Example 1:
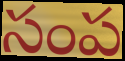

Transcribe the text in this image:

సంప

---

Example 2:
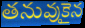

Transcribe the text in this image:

తనువుకైన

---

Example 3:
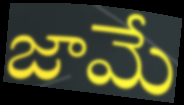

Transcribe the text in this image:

జామే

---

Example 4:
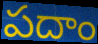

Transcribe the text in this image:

పదాం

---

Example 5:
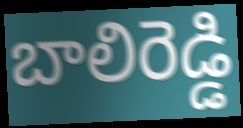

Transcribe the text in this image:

బాలిరెడ్డి